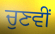
ਚੁਣਵੀਂ